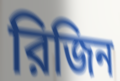
রিজিন